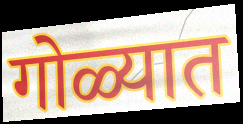
गोळ्यात